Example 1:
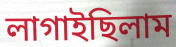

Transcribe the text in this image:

লাগাইছিলাম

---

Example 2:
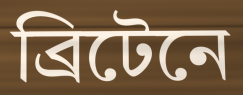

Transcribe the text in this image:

ব্রিটেনে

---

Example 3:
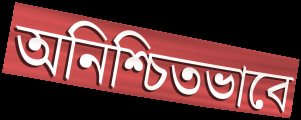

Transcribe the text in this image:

অনিশ্চিতভাবে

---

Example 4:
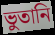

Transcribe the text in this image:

ভুতানি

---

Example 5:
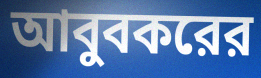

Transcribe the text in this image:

আবুবকরের